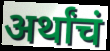
अर्थांचं